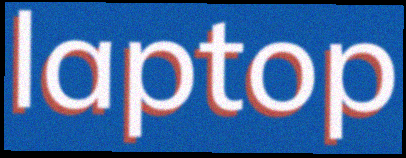
laptop